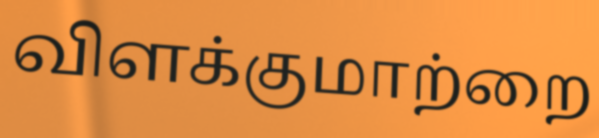
விளக்குமாற்றை